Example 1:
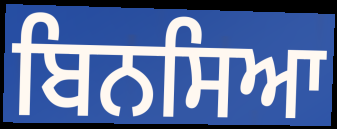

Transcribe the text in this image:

ਬਿਨਸਿਆ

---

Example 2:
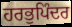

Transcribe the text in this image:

ਹਰਭੁਪਿੰਦਰ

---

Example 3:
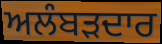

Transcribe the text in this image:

ਅਲੰਬੜਦਾਰ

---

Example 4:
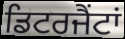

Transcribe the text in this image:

ਡਿਟਰਜੈਂਟਾਂ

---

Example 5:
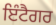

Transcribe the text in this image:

ਇੰਟੈਗਰ